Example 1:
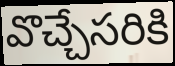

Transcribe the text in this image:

వొచ్చేసరికి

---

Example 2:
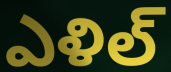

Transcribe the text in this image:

ఎళిల్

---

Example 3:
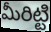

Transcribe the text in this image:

మీరిట్టి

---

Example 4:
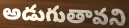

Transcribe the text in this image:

అడుగుతావని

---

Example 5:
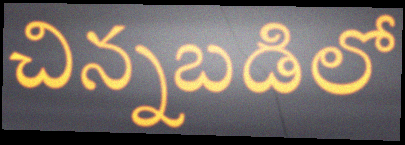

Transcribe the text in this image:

చిన్నబడిలో